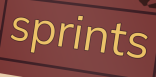
sprints